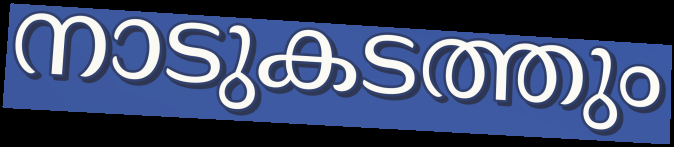
നാടുകടത്തും